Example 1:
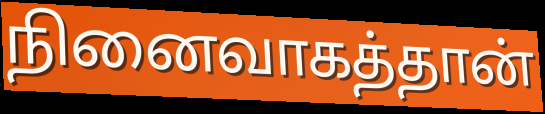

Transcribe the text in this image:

நினைவாகத்தான்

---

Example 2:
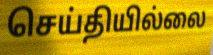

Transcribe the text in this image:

செய்தியில்லை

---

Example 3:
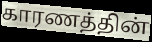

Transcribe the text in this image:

காரணத்தின்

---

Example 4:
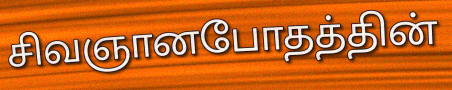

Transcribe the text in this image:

சிவஞானபோதத்தின்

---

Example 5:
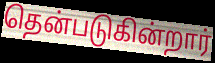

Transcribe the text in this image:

தென்படுகின்றார்